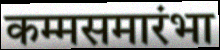
कम्मसमारंभा